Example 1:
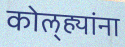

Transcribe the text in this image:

कोल्ह्यांना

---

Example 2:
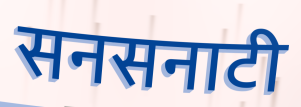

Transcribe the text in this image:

सनसनाटी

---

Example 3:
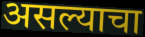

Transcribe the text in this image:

असल्‍याचा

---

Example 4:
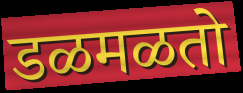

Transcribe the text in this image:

डळमळतो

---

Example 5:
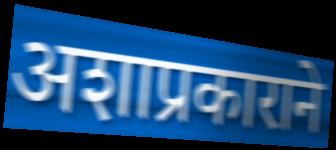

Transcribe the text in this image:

अशाप्रकाराने